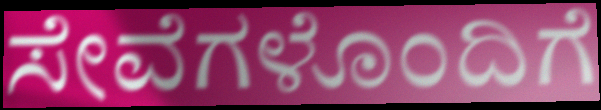
ಸೇವೆಗಳೊಂದಿಗೆ